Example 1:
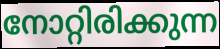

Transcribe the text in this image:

നോറ്റിരിക്കുന്ന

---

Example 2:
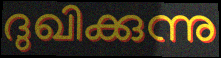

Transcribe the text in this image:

ദുഖിക്കുന്നു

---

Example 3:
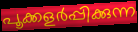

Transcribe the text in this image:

പൂക്കളർപ്പിക്കുന്ന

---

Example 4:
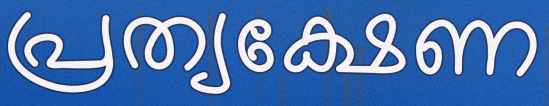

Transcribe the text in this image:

പ്രത്യക്ഷേണ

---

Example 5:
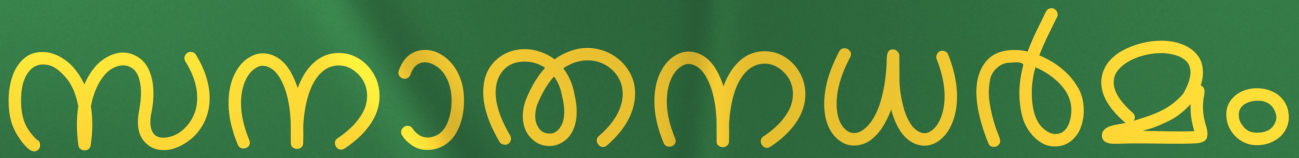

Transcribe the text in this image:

സനാതനധർമം